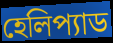
হেলিপ্যাড